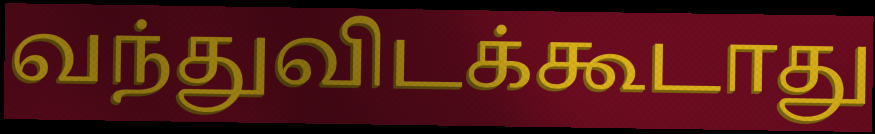
வந்துவிடக்கூடாது